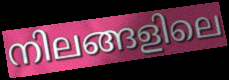
നിലങ്ങളിലെ